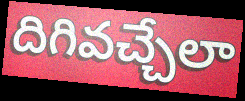
దిగివచ్చేలా